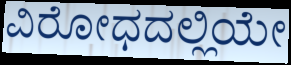
ವಿರೋಧದಲ್ಲಿಯೇ